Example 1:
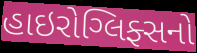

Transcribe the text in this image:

હાઇરોગ્લિફ્સનો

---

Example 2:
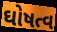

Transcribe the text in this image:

ઘોષત્વ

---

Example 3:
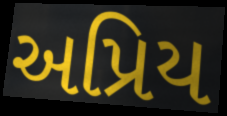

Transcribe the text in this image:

અપ્રિય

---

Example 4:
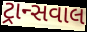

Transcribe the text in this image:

ટ્રાન્સવાલ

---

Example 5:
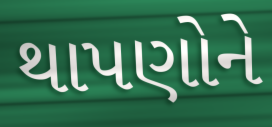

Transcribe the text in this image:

થાપણોને